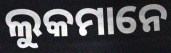
ଲୁକମାନେ